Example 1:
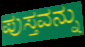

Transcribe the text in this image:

ಪುಸ್ತವನ್ನು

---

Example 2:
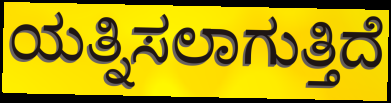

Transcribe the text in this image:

ಯತ್ನಿಸಲಾಗುತ್ತಿದೆ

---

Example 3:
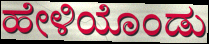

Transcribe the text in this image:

ಹೇಳಿಯೊಂಡು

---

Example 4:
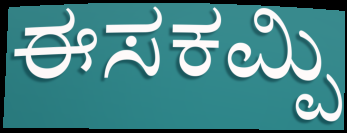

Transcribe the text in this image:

ಈಸಕಮ್ಪಿ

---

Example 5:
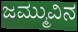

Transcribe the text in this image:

ಜಮ್ಮುವಿನ